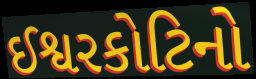
ઈશ્વરકોટિનો